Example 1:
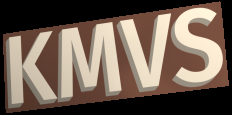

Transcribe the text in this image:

KMVS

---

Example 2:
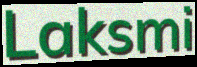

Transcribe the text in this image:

Laksmi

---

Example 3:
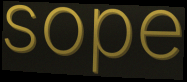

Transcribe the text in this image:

sope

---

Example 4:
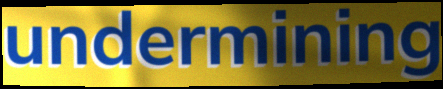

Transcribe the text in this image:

undermining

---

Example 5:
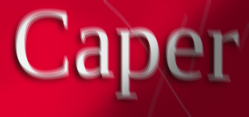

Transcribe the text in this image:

Caper